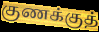
குணக்குத்